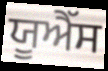
ਯੂਐੱਸ